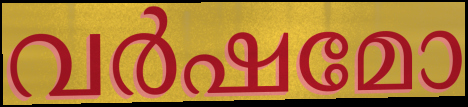
വർഷമോ